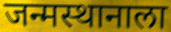
जन्मस्थानाला